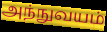
அந்நுவயம்